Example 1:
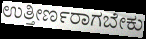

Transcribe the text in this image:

ಉತ್ತೀರ್ಣರಾಗಬೇಕು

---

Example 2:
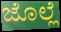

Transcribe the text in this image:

ಜೊಲ್ಲೆ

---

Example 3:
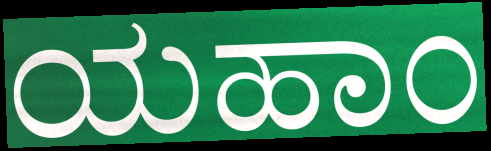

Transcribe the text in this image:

ಯಹಾಂ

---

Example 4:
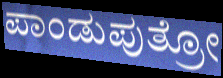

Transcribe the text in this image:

ಪಾಂಡುಪುತ್ರೋ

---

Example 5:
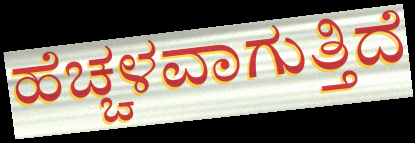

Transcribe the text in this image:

ಹೆಚ್ಚಳವಾಗುತ್ತಿದೆ